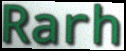
Rarh